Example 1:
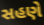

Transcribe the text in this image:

સહણે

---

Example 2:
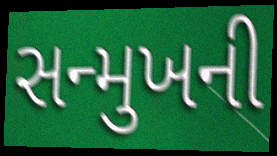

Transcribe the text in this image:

સન્મુખની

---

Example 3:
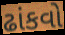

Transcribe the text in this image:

ઢાંકવો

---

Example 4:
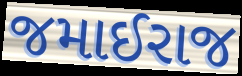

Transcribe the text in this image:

જમાઈરાજ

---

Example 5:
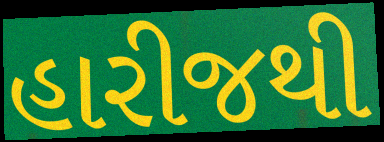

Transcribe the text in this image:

હારીજથી